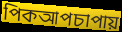
পিকআপচাপায়